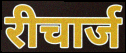
रीचार्ज